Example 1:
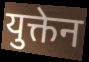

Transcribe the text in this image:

युक्तेन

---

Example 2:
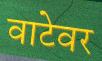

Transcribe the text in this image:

वाटेवर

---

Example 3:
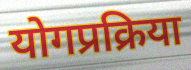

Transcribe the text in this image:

योगप्रक्रिया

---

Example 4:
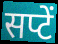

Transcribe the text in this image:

सप्टें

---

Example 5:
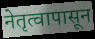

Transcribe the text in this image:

नेतृत्वापासून